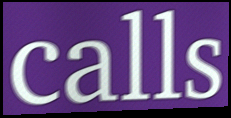
calls